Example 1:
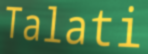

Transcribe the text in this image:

Talati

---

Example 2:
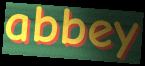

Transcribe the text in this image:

abbey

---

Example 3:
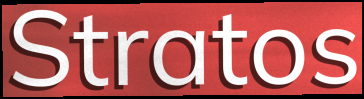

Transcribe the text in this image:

Stratos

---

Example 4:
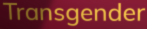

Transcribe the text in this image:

Transgender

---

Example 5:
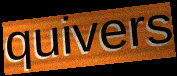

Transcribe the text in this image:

quivers